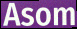
Asom